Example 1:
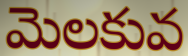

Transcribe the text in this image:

మెలకువ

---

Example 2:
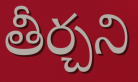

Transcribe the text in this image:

తీర్చని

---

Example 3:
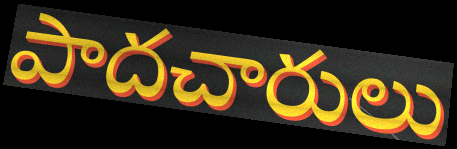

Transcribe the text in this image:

పాదచారులు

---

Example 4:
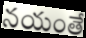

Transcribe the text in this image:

నయంతే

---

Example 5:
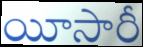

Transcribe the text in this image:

యీసారీ